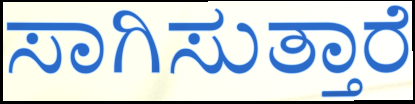
ಸಾಗಿಸುತ್ತಾರೆ